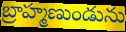
బ్రాహ్మణుండును